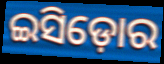
ଇସିଡ଼ୋର